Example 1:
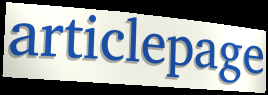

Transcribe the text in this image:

articlepage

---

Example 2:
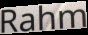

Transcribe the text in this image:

Rahm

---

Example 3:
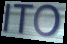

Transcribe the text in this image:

ITO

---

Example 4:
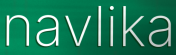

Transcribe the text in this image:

navlika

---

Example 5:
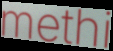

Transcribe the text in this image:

methi